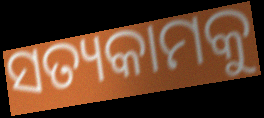
ସତ୍ୟକାମକୁ